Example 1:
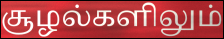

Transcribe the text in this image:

சூழல்களிலும்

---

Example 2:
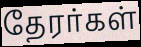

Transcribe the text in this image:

தேரர்கள்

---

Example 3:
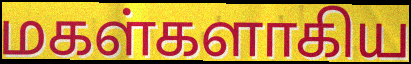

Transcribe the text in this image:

மகள்களாகிய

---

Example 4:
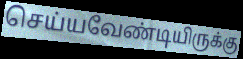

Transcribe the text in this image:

செய்யவேண்டியிருக்கு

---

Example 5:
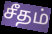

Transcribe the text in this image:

சீதம்